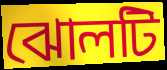
ঝোলটি